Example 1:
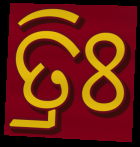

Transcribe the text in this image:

ତ୍ରିଃ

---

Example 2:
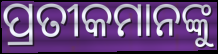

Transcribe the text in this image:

ପ୍ରତୀକମାନଙ୍କୁ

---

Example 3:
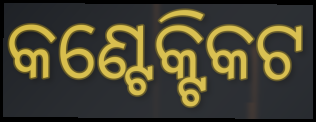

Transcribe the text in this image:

କଣ୍ଟେକ୍ଟିକଟ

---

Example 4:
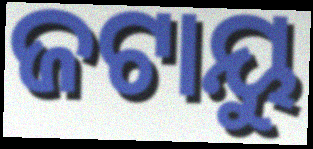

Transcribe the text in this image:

ଜଟାୟୁ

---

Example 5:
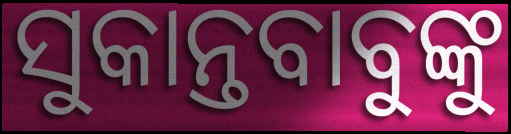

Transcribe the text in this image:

ସୁକାନ୍ତବାବୁଙ୍କୁ